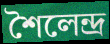
শৈলেন্দ্র